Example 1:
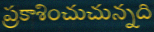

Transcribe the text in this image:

ప్రకాశించుచున్నది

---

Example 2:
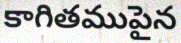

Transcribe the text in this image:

కాగితముపైన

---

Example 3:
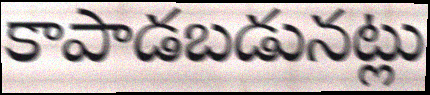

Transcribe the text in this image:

కాపాడబడునట్లు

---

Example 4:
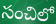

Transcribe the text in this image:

సంచిలో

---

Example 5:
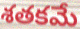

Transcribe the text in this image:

శతకమే